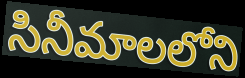
సినీమాలలోని